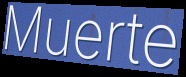
Muerte